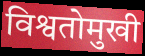
विश्वतोमुखी